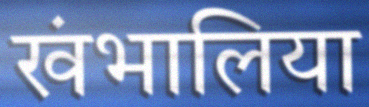
खंभालिया